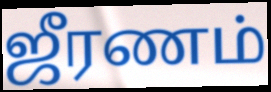
ஜீரணம்